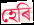
হেৰি